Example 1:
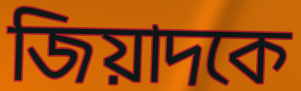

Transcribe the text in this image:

জিয়াদকে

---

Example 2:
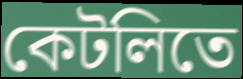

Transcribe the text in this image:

কেটলিতে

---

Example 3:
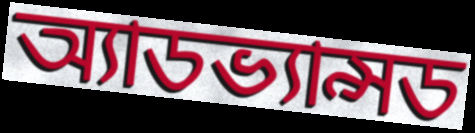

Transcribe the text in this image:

অ্যাডভ্যান্সড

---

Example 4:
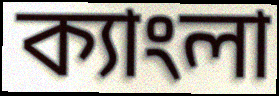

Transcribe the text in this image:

ক্যাংলা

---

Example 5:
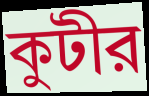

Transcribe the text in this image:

কুটীর